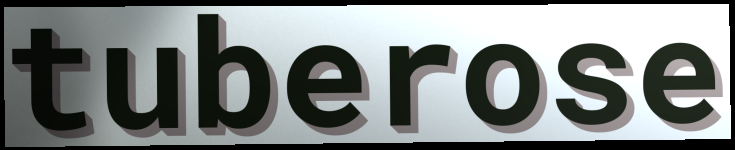
tuberose